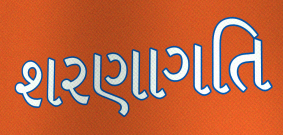
શરણાગતિ